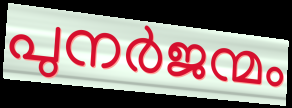
പുനർജന്മം